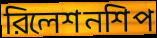
রিলেশনশিপ